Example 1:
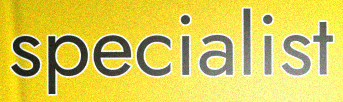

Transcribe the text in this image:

specialist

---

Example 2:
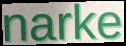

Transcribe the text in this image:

narke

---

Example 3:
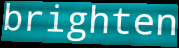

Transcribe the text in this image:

brighten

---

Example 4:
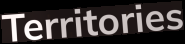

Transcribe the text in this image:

Territories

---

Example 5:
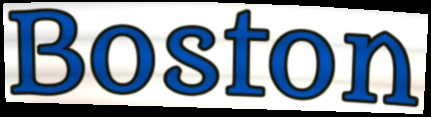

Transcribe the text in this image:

Boston